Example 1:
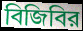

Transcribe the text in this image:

বিজিবির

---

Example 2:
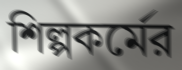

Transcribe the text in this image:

শিল্পকর্মের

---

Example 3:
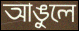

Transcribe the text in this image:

আঙুলে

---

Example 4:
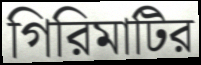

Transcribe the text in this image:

গিরিমাটির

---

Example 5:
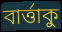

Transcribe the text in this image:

বার্ত্তাকু